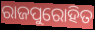
ରାଜପୁରୋହିତ